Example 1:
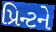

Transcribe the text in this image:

પ્રિન્ટને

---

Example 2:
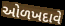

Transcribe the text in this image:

ઓળખદાવે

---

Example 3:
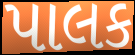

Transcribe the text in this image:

પાલક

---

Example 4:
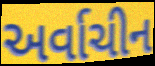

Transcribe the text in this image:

અર્વાચીન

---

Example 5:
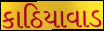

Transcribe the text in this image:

કાઠિયાવાડ